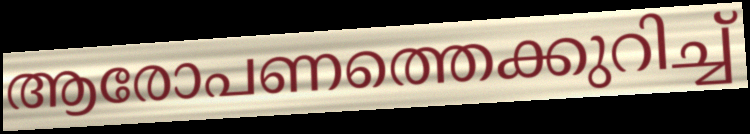
ആരോപണത്തെക്കുറിച്ച്